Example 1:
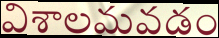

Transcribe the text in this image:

విశాలమవడం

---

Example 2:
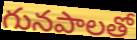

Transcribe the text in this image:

గునపాలతో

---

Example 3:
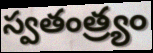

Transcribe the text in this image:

స్వతంత్ర్యం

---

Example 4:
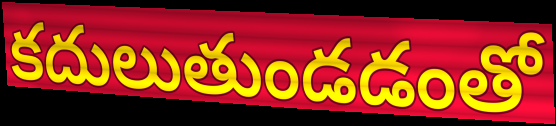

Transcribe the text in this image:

కదులుతుండడంతో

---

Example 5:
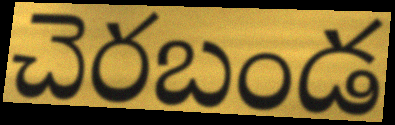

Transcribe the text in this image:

చెరబండ